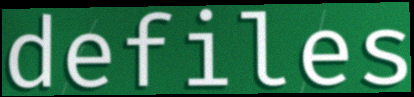
defiles